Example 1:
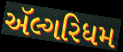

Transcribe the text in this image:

ઍલ્ગરિધમ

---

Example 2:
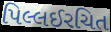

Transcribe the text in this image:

પિલ્લઈરચિત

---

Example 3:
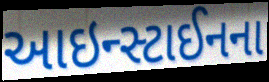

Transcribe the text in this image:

આઇન્સ્ટાઈનના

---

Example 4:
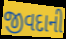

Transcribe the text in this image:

જીવદાની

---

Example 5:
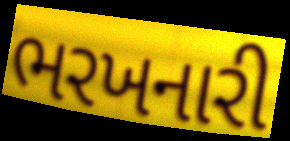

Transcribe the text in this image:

ભરખનારી